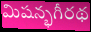
మిషన్భగీరథ